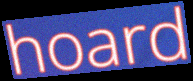
hoard